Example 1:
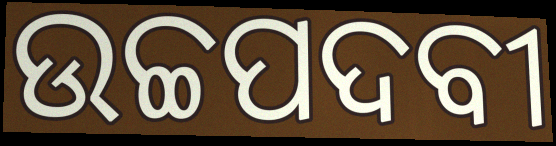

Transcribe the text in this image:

ଉଚ୍ଚପଦବୀ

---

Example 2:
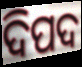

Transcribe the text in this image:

ଦିପଦ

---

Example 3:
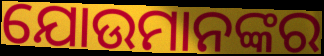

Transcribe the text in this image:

ଯୋଉମାନଙ୍କର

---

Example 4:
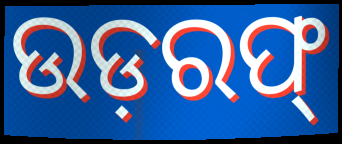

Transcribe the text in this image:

ଉଡ଼ରଫ୍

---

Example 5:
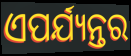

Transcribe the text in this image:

ଏପର୍ଯ୍ୟନ୍ତର